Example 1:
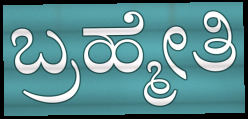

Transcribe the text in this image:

ಬ್ರಹ್ಮೇತಿ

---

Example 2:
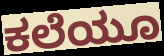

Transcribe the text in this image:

ಕಲೆಯೂ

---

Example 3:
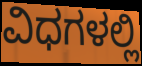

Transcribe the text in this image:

ವಿಧಗಳಲ್ಲಿ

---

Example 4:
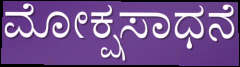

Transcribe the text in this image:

ಮೋಕ್ಷಸಾಧನೆ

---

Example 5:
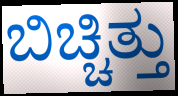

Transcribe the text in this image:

ಬಿಚ್ಚಿತ್ತು